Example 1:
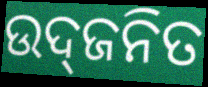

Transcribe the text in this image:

ଉଦ୍‌ଜନିତ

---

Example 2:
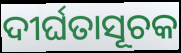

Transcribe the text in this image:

ଦୀର୍ଘତାସୂଚକ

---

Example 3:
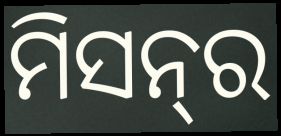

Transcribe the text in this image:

ମିସନ୍‌ର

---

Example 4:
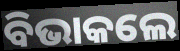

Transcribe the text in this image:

ବିଭାକଲେ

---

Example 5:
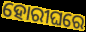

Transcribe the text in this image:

ହୋରୀଘରେ